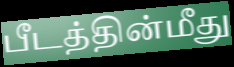
பீடத்தின்மீது